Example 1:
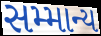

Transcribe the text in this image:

સમ્માન્ય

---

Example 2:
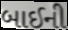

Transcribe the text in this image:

બાઈની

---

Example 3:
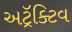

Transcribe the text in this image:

અટ્રૅક્ટિવ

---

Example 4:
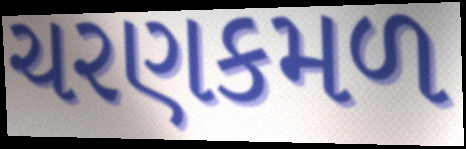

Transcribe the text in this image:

ચરણકમળ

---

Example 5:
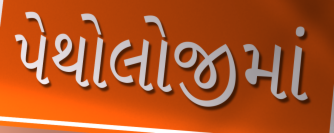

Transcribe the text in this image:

પેથોલોજીમાં